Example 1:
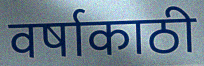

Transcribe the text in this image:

वर्षाकाठी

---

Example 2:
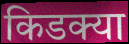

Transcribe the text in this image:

किडक्या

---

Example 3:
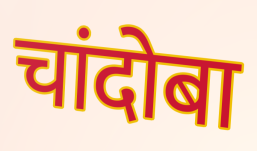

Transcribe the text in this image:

चांदोबा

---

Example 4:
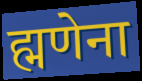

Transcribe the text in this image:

ह्मणेना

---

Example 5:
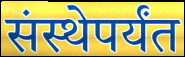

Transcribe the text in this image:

संस्थेपर्यंत